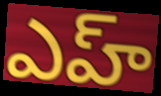
ఎహ్